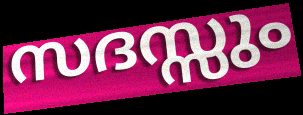
സദസ്സും